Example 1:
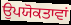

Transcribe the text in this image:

ਉਪਯੋਕਤਾਵਾਂ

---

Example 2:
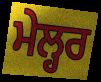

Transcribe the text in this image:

ਮੇਲ੍ਹਰ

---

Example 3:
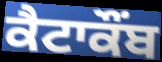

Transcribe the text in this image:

ਕੈਟਾਕੌਂਬ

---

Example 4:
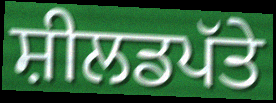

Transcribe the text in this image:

ਸ਼ੀਲਡਪੱਤੇ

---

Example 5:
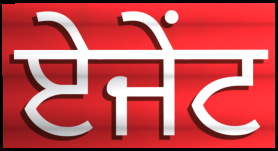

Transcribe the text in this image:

ਏਜੇਂਟ